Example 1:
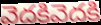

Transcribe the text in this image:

వెదకివెదకి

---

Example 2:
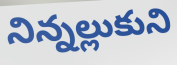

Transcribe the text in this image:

నిన్నల్లుకుని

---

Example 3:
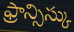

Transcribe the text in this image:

ఫ్రాన్సిస్కు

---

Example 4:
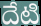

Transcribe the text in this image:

దేటి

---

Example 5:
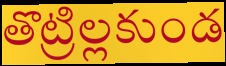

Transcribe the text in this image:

తొట్రిల్లకుండ